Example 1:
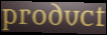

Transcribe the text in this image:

product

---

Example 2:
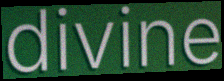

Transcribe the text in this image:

divine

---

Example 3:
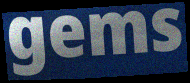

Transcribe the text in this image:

gems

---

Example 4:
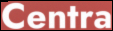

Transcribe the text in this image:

Centra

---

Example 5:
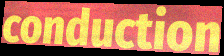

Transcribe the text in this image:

conduction